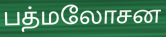
பத்மலோசன